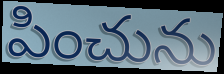
పించును